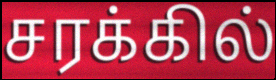
சரக்கில்